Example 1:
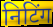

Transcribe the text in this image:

निटिंग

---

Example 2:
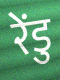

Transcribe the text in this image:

रेंडु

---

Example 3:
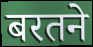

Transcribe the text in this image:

बरतने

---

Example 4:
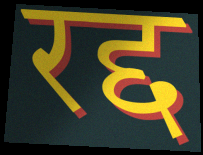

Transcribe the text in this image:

रद्द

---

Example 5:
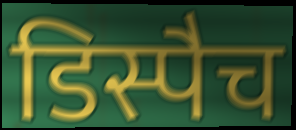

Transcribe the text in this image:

डिस्पैच